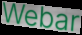
Webar